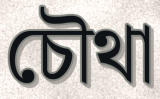
চৌথা